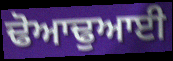
ਢੋਆਢੁਆਈ